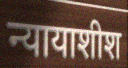
न्यायाशीश